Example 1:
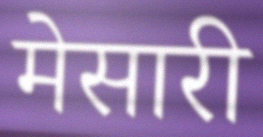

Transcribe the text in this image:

मेसारी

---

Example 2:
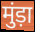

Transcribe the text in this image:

मुंड़ा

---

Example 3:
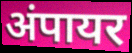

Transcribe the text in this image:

अंपायर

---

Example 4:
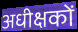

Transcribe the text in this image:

अधीक्षकों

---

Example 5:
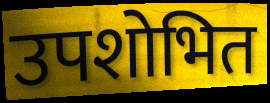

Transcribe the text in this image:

उपशोभित